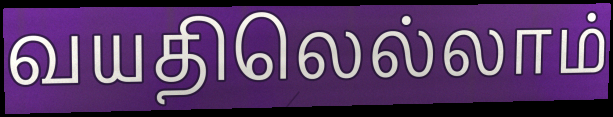
வயதிலெல்லாம்